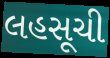
લહસૂચી